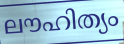
ലൗഹിത്യം